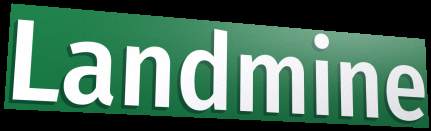
Landmine